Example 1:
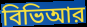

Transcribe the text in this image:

বিভিআর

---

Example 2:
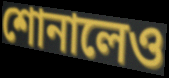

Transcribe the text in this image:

শোনালেও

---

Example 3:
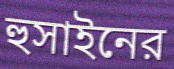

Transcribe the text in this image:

হুসাইনের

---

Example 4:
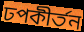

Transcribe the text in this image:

ঢপকীর্তন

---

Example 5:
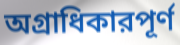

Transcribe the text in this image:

অগ্রাধিকারপূর্ণ